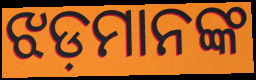
ଝଡ଼ମାନଙ୍କ